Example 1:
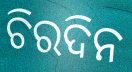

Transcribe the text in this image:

ଚିରଦିନ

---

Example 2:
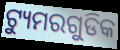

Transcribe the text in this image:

ଟ୍ୟୁମରଗୁଡିକ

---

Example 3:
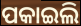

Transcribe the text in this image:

ପକାଇଲି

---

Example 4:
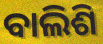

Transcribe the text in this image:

ବାଲିଶି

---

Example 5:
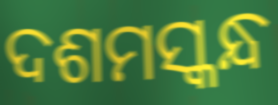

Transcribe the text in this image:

ଦଶମସ୍କନ୍ଧ